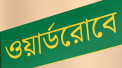
ওয়ার্ডরোবে